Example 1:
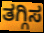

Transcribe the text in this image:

ತಗ್ಗಿಸ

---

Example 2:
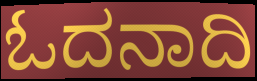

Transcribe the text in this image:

ಓದನಾದಿ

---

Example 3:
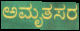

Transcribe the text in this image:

ಅಮೃತಸರ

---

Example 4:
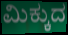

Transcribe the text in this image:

ಮಿಕ್ಕುದ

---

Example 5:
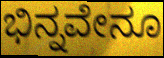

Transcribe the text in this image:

ಭಿನ್ನವೇನೂ